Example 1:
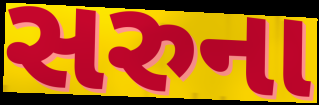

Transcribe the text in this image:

સરુના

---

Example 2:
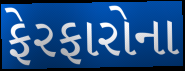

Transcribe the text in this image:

ફેરફારોના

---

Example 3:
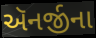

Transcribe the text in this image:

ઍનર્જીના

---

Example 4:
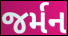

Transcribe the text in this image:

જર્મન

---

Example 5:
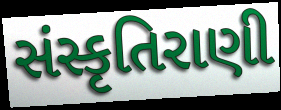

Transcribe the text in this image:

સંસ્કૃતિરાણી